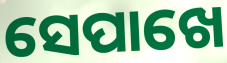
ସେପାଖେ